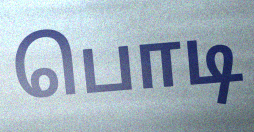
பொடி